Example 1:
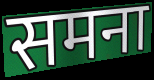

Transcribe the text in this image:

समना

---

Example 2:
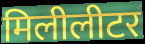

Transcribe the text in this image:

मिलीलीटर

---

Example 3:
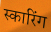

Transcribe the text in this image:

स्कारिंग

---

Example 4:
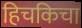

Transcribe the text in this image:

हिचकिचा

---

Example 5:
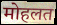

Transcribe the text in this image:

मोहलत